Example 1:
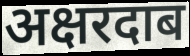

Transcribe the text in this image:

अक्षरदाब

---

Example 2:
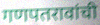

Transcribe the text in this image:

गणपतरावांची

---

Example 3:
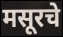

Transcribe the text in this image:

मसूरचे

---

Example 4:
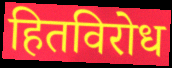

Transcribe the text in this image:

हितविरोध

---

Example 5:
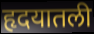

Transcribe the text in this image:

हृदयातली